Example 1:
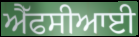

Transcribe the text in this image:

ਐੱਫਸੀਆਈ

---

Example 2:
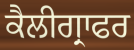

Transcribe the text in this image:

ਕੈਲੀਗ੍ਰਾਫਰ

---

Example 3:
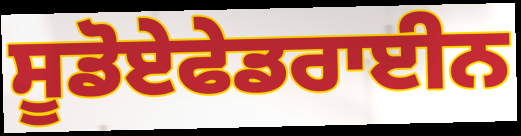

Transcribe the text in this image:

ਸੂਡੋਏਫੇਡਰਾਈਨ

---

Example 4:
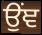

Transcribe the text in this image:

ਉਂਞ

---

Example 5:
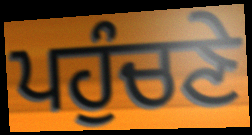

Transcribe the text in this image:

ਪਹੁੰਚਣੇ